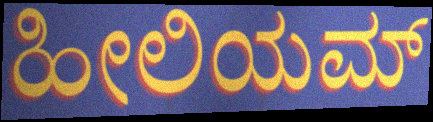
ಹೀಲಿಯಮ್